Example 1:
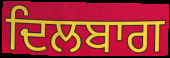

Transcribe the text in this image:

ਦਿਲਬਾਗ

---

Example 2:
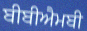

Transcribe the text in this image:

ਬੀਬੀਐਮਬੀ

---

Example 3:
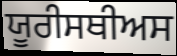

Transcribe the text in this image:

ਯੂਰੀਸਥੀਅਸ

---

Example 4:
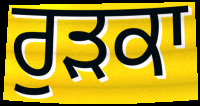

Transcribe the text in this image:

ਰੁੜਕਾ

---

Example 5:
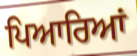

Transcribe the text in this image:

ਪਿਆਰਿਆਂ